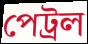
পেট্রল